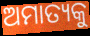
ଅମାତ୍ୟକୁ